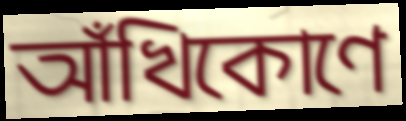
আঁখিকোণে